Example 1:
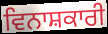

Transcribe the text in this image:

ਵਿਨਾਸ਼ਕਾਰੀ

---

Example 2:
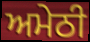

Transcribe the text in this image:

ਅਮੇਠੀ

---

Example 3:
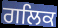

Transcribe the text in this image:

ਗਲਿਕ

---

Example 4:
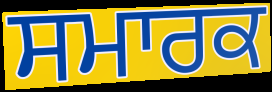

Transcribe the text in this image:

ਸਮਾਰਕ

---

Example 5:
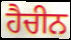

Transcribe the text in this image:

ਹੈਚੀਨ